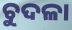
ଚୁଦଳା